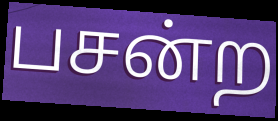
பசன்ற